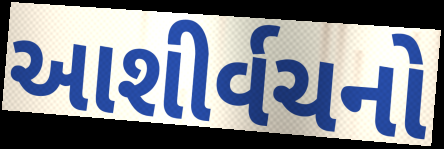
આશીર્વચનો